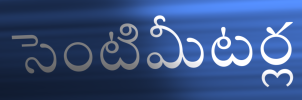
సెంటిమీటర్ల